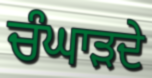
ਚੰਘਾੜਦੇ